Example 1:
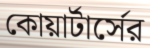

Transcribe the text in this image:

কোয়ার্টার্সের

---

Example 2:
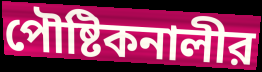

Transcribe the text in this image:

পৌষ্টিকনালীর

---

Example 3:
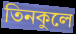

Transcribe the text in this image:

তিনকুলে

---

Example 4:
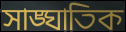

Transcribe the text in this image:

সাঙ্ঘাতিক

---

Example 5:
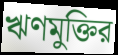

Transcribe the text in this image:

ঋণমুক্তির